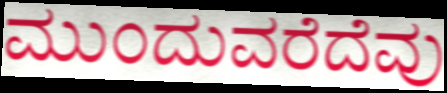
ಮುಂದುವರೆದೆವು